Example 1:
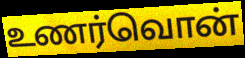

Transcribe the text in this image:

உணர்வொன்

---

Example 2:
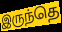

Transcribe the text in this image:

இருந்தெ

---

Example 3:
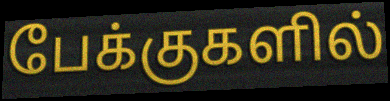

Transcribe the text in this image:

பேக்குகளில்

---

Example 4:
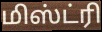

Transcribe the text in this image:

மிஸ்ட்ரி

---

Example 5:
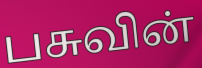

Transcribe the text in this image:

பசுவின்